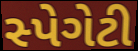
સ્પેગેટી